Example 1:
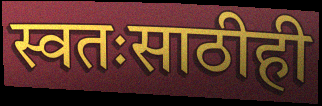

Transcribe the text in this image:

स्वतःसाठीही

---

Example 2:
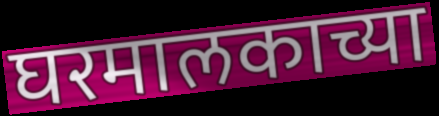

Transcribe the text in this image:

घरमालकाच्या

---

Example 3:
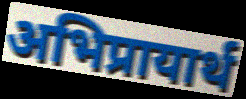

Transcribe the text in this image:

अभिप्रायार्थ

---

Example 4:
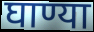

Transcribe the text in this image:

घाण्या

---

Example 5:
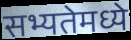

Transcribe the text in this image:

सभ्यतेमध्ये